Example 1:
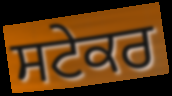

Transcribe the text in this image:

ਸਟੇਕਰ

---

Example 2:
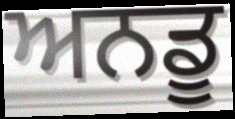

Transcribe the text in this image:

ਅਨਡੂ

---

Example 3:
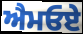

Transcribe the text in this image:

ਐਮਓਏ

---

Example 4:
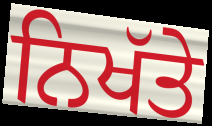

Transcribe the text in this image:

ਨਿਖੱਤੇ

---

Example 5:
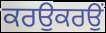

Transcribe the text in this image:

ਕਰਉਕਰਉਂ